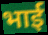
भार्ई